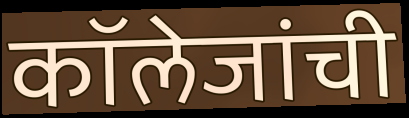
कॉलेजांची